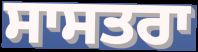
ਸਾਸਤਰਾ